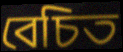
বেচিত